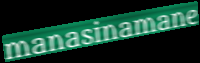
manasinamane